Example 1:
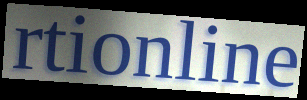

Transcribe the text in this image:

rtionline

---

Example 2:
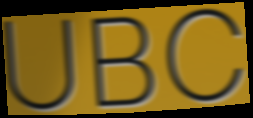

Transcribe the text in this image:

UBC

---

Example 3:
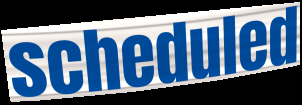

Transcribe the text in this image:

scheduled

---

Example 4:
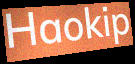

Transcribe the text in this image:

Haokip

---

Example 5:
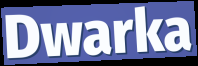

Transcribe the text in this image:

Dwarka